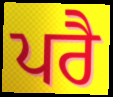
ਪਰੈ